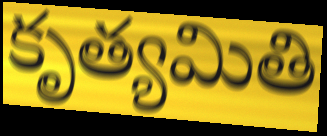
కృత్యమితి